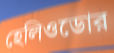
হেলিওডোর